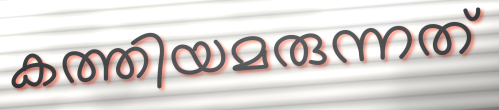
കത്തിയമരുന്നത്